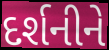
દર્શનીને